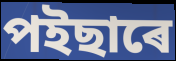
পইছাৰে